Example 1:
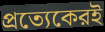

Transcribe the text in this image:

প্রত্যেকেরই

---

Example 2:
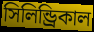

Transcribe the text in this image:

সিলিন্ড্রিকাল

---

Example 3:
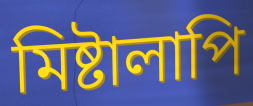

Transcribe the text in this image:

মিষ্টালাপি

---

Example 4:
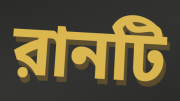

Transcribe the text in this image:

রানটি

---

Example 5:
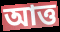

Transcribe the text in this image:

আত্ত